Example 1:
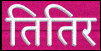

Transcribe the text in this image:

तितिर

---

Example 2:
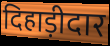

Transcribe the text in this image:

दिहाड़ीदार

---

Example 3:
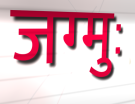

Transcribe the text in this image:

जग्मुः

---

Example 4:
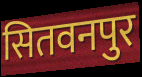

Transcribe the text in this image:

सितवनपुर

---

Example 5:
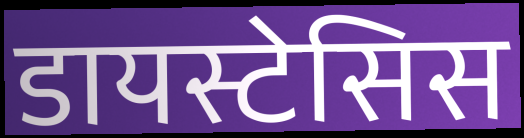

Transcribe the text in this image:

डायस्टेसिस